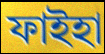
ফাইহা